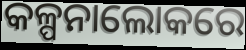
କଳ୍ପନାଲୋକରେ